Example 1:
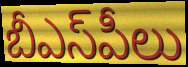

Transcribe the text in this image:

బీఎస్‌పీలు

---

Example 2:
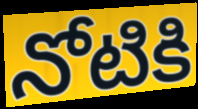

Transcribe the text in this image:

నోటికి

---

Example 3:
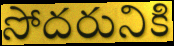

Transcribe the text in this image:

సోదరునికి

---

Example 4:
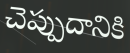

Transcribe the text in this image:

చెప్పుదానికి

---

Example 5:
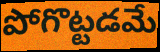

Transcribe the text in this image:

పోగొట్టడమే